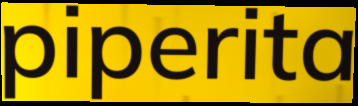
piperita